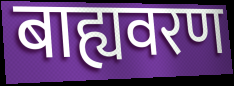
बाह्यवरण